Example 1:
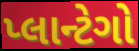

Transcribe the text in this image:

પ્લાન્ટેગો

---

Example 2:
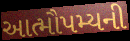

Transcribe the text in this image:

આત્મૌપમ્યની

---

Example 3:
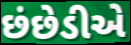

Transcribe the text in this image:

છંછેડીએ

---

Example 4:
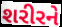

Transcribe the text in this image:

શરીરને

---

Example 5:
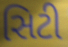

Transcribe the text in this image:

સિટી